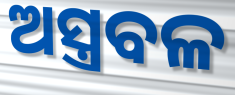
ଅସ୍ତ୍ରବଳ